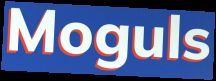
Moguls